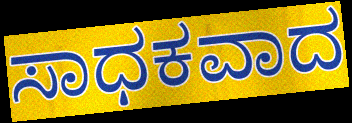
ಸಾಧಕವಾದ